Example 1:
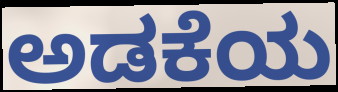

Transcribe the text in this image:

ಅಡಕೆಯ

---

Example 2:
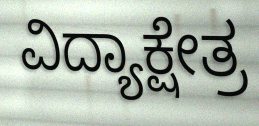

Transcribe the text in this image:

ವಿದ್ಯಾಕ್ಷೇತ್ರ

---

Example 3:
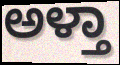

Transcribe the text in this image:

ಅಳ್ತಾ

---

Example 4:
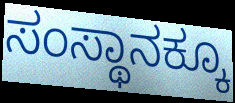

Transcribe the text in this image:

ಸಂಸ್ಥಾನಕ್ಕೂ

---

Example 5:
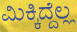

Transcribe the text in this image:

ಮಿಕ್ಕಿದ್ದೆಲ್ಲ